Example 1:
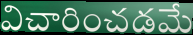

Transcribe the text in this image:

విచారించడమే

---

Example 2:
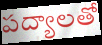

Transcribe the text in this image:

పద్యాలతో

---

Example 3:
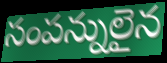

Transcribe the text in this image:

సంపన్నులైన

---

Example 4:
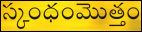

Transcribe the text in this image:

స్కంధంమొత్తం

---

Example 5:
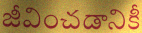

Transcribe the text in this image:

జీవించడానికీ